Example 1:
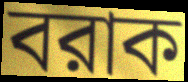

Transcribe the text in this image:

বরাক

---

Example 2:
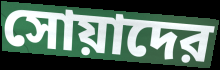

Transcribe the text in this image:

সোয়াদের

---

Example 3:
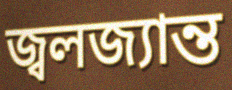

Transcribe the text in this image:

জ্বলজ্যান্ত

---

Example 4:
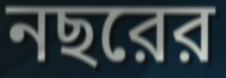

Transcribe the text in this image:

নছরের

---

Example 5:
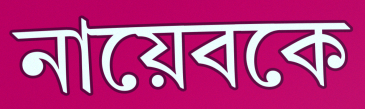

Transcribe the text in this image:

নায়েবকে